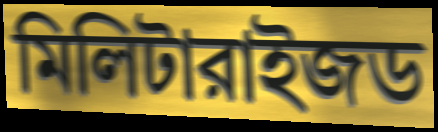
মিলিটারাইজড